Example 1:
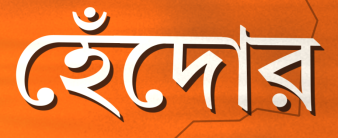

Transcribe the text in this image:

হেঁদোর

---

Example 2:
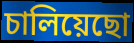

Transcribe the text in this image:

চালিয়েছো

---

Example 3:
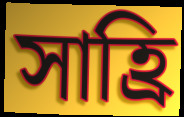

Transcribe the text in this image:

সাহ্রি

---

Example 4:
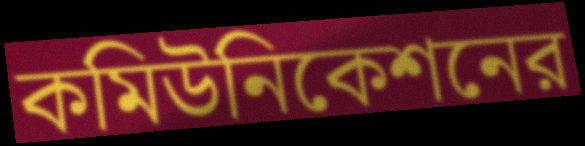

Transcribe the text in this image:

কমিউনিকেশনের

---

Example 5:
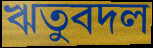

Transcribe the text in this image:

ঋতুবদল